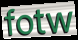
fotw